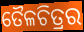
ତୈଳଚିତ୍ରର